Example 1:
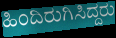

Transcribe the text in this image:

ಹಿಂದಿರುಗಿಸಿದ್ದರು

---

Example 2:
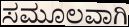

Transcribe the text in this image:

ಸಮೂಲವಾಗಿ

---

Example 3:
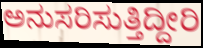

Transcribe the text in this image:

ಅನುಸರಿಸುತ್ತಿದ್ದೀರಿ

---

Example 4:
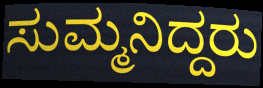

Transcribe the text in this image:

ಸುಮ್ಮನಿದ್ದರು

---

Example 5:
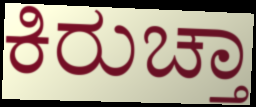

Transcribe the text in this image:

ಕಿರುಚ್ತಾ